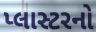
પ્લાસ્ટરનો